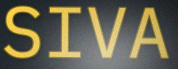
SIVA